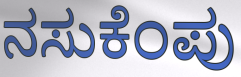
ನಸುಕೆಂಪು